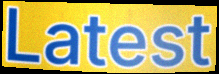
Latest